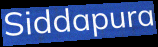
Siddapura